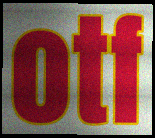
otf